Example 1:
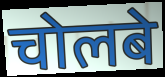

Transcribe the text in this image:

चोलबे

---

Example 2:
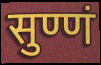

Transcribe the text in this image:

सुण्णं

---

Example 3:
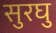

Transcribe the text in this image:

सुरघु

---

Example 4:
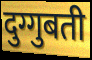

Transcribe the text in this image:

दुग्गुबती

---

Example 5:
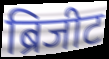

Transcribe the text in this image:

ब्रिजीट